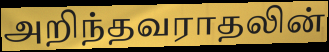
அறிந்தவராதலின்